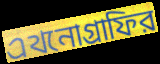
এথনোগ্রাফির